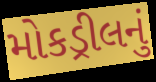
મોકડ્રીલનું